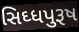
સિઘ્ધપુરૂષ